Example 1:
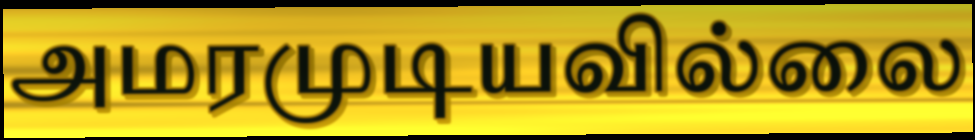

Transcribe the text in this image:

அமரமுடியவில்லை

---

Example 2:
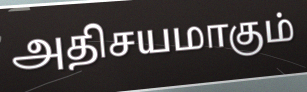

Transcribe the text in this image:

அதிசயமாகும்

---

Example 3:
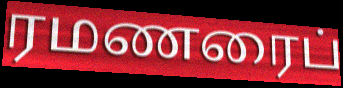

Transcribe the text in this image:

ரமணரைப்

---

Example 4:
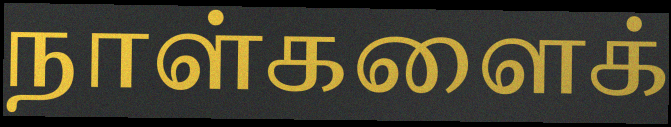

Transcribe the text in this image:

நாள்களைக்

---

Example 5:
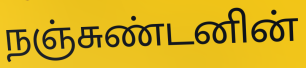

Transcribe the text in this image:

நஞ்சுண்டனின்